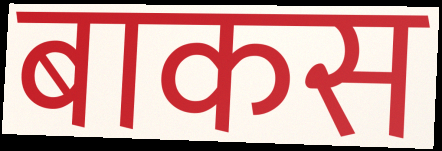
बाकस